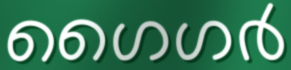
ഗൈഗർ